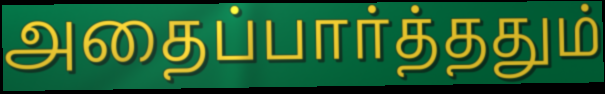
அதைப்பார்த்ததும்